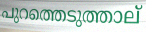
പുറത്തെടുത്താല്